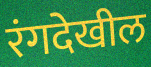
रंगदेखील